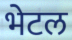
भेटल